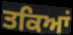
ਤਕਿਆਂ